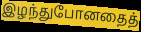
இழந்துபோனதைத்